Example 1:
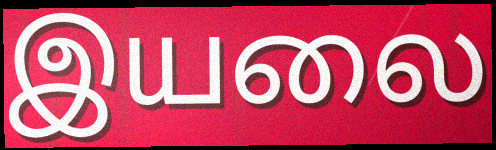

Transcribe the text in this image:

இயலை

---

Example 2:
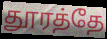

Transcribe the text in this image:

தூரத்தே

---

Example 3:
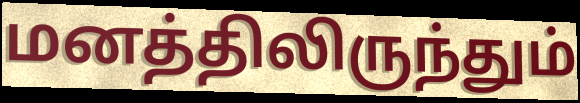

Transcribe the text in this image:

மனத்திலிருந்தும்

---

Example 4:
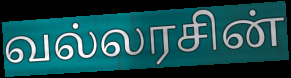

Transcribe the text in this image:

வல்லரசின்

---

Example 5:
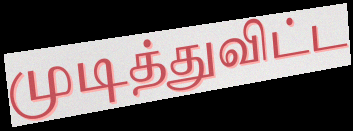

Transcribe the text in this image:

முடித்துவிட்ட